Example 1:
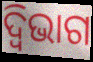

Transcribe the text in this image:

ଦ୍ୱିଭାଗ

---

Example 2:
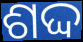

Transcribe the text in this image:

ଶଦ୍ଦ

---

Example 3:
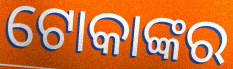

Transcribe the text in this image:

ଟୋକାଙ୍କର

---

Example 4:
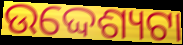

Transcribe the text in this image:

ଉଦ୍ଦେଶ୍ୟଟା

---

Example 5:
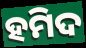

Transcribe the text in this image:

ହମିଦ